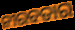
ନୀରବତାର